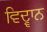
ਵਿਦ੍ਵਾਨ